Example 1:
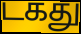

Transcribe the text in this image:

டகது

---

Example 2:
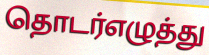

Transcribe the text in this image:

தொடர்எழுத்து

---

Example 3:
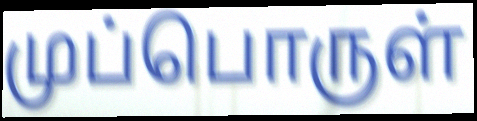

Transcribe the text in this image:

முப்பொருள்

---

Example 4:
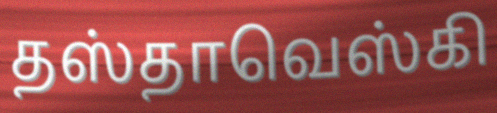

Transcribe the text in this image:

தஸ்தாவெஸ்கி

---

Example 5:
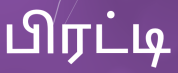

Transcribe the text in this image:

பிரட்டி